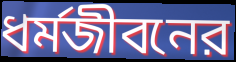
ধর্মজীবনের